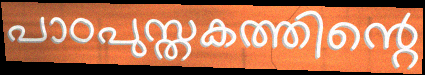
പാഠപുസ്തകത്തിന്റെ